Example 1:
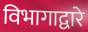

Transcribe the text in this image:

विभागाद्वारे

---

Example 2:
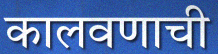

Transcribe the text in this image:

कालवणाची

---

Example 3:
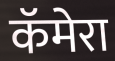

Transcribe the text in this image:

कॅमेरा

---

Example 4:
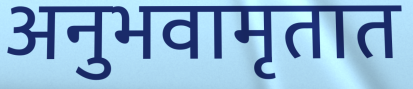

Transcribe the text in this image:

अनुभवामृतात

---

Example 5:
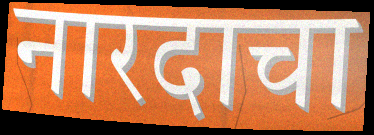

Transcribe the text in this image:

नारदाचा